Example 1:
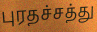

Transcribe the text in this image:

புரதச்சத்து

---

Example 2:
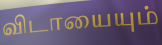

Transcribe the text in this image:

விடாயையும்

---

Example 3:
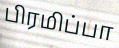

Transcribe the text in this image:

பிரமிப்பா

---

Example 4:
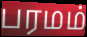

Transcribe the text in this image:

பரமம்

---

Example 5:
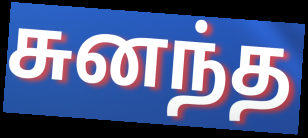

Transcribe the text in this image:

சுனந்த